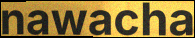
nawacha